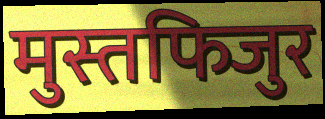
मुस्तफिजुर